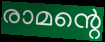
രാമന്റെ